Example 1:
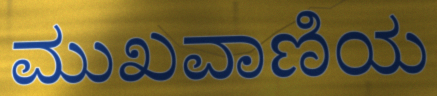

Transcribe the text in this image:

ಮುಖವಾಣಿಯ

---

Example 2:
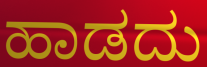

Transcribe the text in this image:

ಹಾಡದು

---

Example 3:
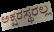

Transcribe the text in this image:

ಅಕ್ಷರಸ್ಥರಲ್ಲ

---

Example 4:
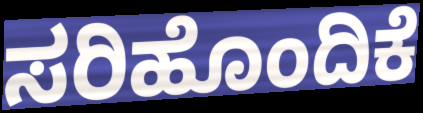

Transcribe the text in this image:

ಸರಿಹೊಂದಿಕೆ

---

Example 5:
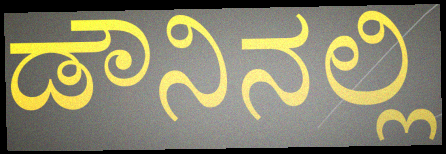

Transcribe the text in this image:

ಡೌನಿನಲ್ಲಿ